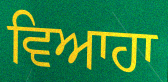
ਵਿਆਹਾ